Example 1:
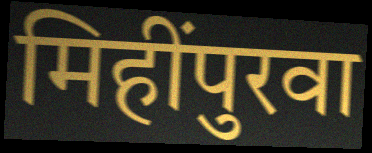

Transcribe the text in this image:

मिहींपुरवा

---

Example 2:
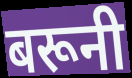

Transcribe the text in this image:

बरूनी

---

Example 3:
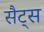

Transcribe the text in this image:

सैट्स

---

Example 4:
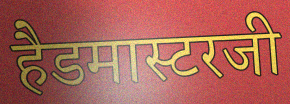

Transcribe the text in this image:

हैडमास्टरजी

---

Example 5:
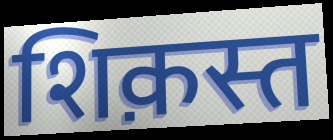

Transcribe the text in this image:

शिक़स्त